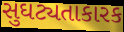
સુઘટ્યતાકારક